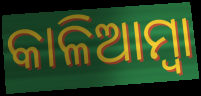
କାଳିଆମ୍ବା